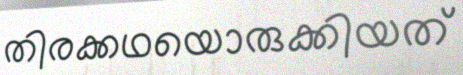
തിരക്കഥയൊരുക്കിയത്